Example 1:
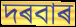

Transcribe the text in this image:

দৰবাৰ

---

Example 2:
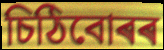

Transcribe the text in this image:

চিঠিবোৰৰ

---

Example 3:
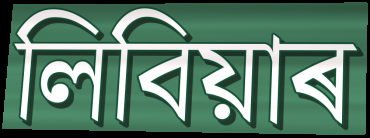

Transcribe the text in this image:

লিবিয়াৰ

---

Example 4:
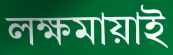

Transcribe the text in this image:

লক্ষমায়াই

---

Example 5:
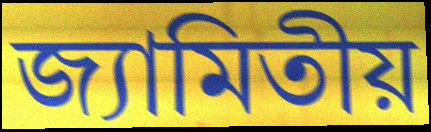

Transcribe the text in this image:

জ্যামিতীয়